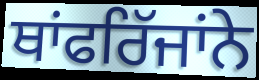
ਥਾਂਫਰਿੱਜਾਂਨੇ